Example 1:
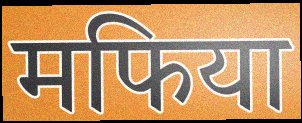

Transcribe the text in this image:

मफिया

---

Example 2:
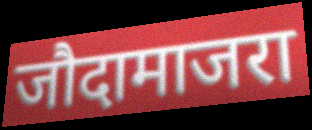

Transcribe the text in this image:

जौदामाजरा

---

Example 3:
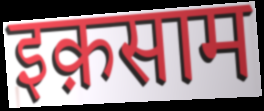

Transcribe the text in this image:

इक़साम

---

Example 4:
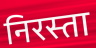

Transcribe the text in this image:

निरस्ता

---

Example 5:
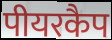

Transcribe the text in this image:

पीयरकैप